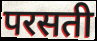
परसती